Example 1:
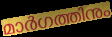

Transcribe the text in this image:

മാർഗത്തിനും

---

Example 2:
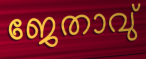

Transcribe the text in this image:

ജേതാവു്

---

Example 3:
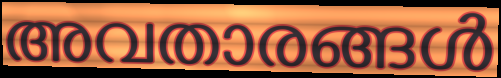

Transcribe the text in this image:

അവതാരങ്ങൾ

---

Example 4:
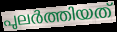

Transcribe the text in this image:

പുലർത്തിയത്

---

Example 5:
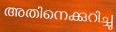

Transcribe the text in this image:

അതിനെക്കുറിച്ചു